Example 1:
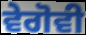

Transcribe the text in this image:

ਵੇਗੋਵੀ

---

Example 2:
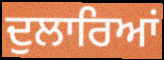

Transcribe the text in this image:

ਦੁਲਾਰਿਆਂ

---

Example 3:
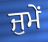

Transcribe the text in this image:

ਜੁਮੇਂ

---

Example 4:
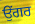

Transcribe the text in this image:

ਉਂਗਰ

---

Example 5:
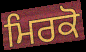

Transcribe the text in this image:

ਮਿਰਕੋ